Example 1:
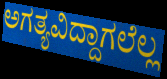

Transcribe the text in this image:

ಅಗತ್ಯವಿದ್ದಾಗಲೆಲ್ಲ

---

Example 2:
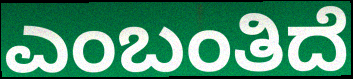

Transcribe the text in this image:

ಎಂಬಂತಿದೆ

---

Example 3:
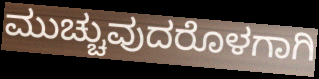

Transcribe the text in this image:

ಮುಚ್ಚುವುದರೊಳಗಾಗಿ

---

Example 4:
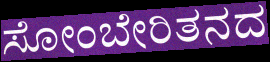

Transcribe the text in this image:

ಸೋಂಬೇರಿತನದ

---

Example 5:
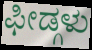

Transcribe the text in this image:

ಫೀಡ್ಗಳು